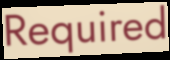
Required